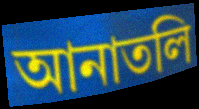
আনাতলি